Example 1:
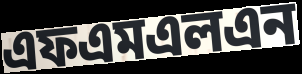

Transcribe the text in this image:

এফএমএলএন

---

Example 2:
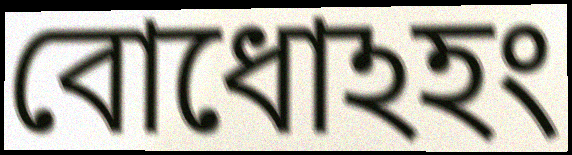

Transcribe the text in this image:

বোধোঽহং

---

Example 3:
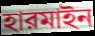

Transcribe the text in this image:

হারমাইন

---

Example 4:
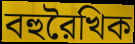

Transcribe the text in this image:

বহুরৈখিক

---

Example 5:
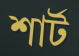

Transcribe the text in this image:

শার্ট